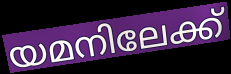
യമനിലേക്ക്